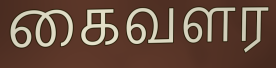
கைவளர